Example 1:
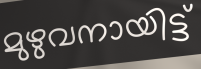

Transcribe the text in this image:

മുഴുവനായിട്ട്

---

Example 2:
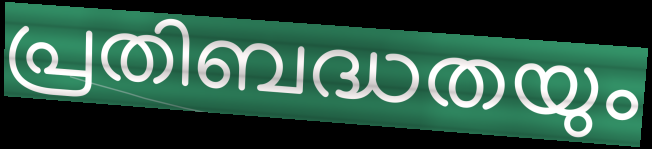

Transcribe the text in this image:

പ്രതിബദ്ധതയും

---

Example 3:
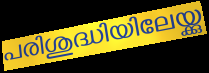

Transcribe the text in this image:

പരിശുദ്ധിയിലേയ്ക്കു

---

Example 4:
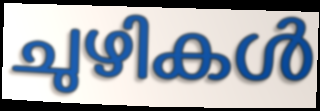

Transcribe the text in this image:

ചുഴികൾ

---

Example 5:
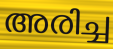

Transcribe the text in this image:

അരിച്ച